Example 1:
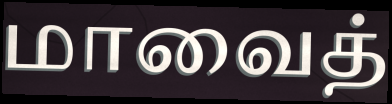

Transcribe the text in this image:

மாவைத்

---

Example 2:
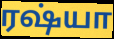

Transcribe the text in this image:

ரஷ்யா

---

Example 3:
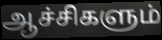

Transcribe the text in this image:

ஆச்சிகளும்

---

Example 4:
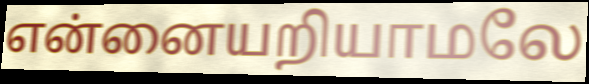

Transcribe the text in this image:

என்னையறியாமலே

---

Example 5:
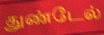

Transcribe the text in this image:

துண்டேல்